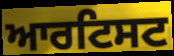
ਆਰਟਿਸਟ